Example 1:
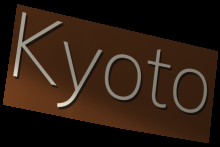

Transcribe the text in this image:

Kyoto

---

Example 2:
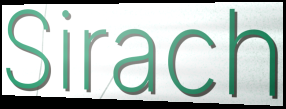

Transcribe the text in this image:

Sirach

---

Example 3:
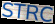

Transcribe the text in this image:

STRC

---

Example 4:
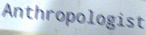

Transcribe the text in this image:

Anthropologist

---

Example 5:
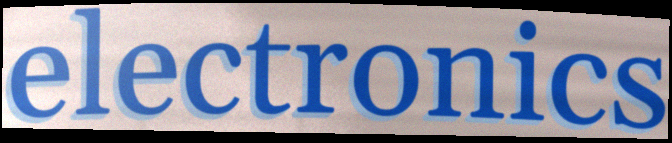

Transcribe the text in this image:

electronics